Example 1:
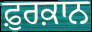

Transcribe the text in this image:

ਫ਼ੁਰਕ਼ਾਨ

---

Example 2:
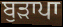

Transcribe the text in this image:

ਬੁੜਾਪਾ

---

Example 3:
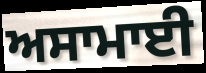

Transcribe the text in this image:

ਅਸਾਮਾਈ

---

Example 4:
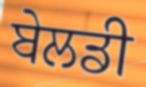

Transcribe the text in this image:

ਬੇਲਡੀ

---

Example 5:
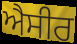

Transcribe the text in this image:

ਐਸੀਰ